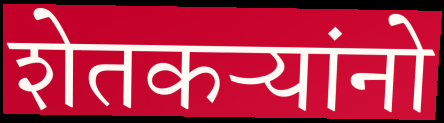
शेतकऱ्यांनो